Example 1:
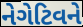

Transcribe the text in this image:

નેગેટિવને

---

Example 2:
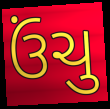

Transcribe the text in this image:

ઉંચુ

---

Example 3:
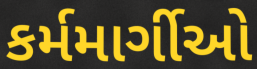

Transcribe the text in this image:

કર્મમાર્ગીઓ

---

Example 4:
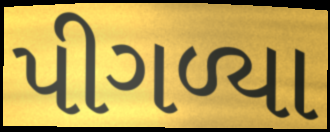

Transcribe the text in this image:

પીગળ્યા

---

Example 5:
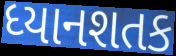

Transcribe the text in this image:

ધ્યાનશતક